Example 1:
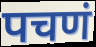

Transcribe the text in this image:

पचणं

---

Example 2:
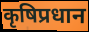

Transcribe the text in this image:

कृषिप्रधान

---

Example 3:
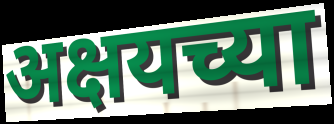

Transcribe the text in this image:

अक्षयच्या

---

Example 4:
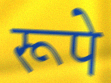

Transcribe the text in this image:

रूपे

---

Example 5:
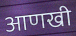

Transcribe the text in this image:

आणखी